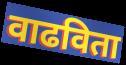
वाढविता